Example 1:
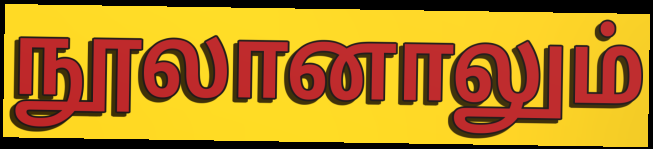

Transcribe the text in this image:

நூலானாலும்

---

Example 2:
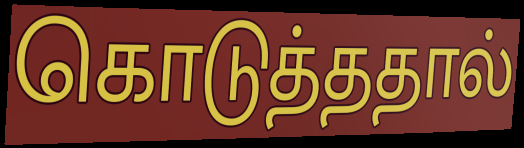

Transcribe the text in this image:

கொடுத்ததால்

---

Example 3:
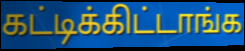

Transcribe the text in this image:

கட்டிக்கிட்டாங்க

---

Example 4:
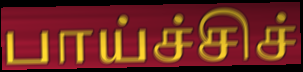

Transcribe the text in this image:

பாய்ச்சிச்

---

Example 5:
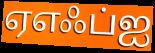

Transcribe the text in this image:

ஏஎஃப்ஐ